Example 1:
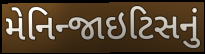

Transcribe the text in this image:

મેનિન્જાઇટિસનું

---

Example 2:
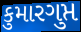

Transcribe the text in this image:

કુમારગુપ્ત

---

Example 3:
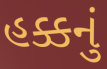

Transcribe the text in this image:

હક્કનું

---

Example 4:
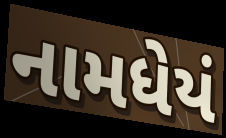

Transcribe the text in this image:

નામધેયં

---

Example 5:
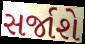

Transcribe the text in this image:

સર્જાશે